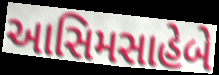
આસિમસાહેબે